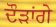
ਦੌੜਾਂਗੇ